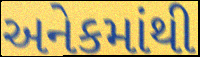
અનેકમાંથી